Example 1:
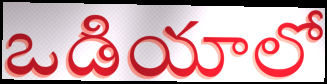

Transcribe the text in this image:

ఒడియాలో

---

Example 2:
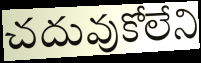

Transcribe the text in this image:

చదువుకోలేని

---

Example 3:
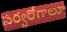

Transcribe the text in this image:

సర్వరోగాలూ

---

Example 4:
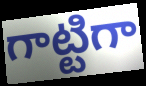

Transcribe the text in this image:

గాట్టిగా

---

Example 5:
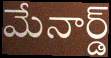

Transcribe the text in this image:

మేనార్డ్